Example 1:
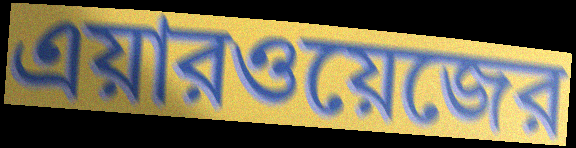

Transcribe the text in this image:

এয়ারওয়েজের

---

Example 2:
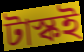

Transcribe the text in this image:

টাস্কই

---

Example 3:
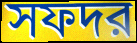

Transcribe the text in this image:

সফদর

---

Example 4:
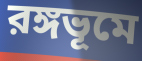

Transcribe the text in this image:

রঙ্গভূমে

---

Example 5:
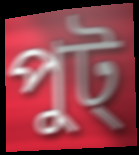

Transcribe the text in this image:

পুট্